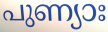
പുണ്യാഃ